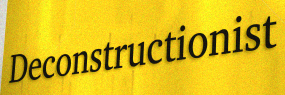
Deconstructionist